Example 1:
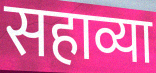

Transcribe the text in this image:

सहाव्या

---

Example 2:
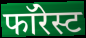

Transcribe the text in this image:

फॉरेस्ट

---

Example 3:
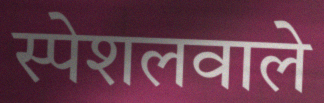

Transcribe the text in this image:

स्पेशलवाले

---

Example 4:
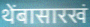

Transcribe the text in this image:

थेंबासारखं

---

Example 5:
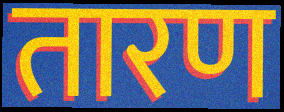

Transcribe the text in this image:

तारण